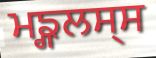
ਮਙ੍ਗਲਸ੍ਸ